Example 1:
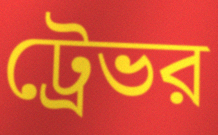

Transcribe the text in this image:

ট্রেভর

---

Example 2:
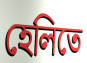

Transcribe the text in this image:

হেলিতে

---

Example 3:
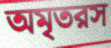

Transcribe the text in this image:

অমৃতরস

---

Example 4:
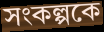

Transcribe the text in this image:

সংকল্পকে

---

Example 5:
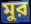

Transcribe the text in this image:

মুর